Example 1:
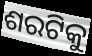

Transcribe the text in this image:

ଶରଟିକୁ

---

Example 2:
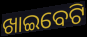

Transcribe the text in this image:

ଖାଇବେଟି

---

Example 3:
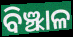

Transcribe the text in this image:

ବିଞ୍ଝାଳ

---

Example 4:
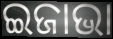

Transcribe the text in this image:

ଇଜାଭା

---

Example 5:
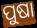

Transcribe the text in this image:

ପୁଷା